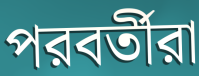
পরবর্তীরা